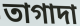
তাগাদা